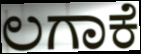
ಲಗಾಕೆ